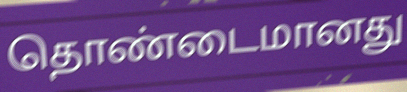
தொண்டைமானது